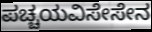
ಪಚ್ಚಯವಿಸೇಸೇನ